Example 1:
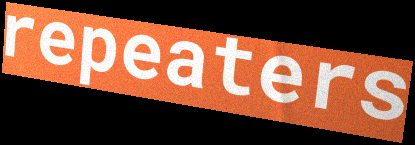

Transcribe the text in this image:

repeaters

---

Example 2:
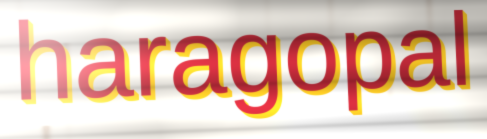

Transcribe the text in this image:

haragopal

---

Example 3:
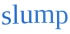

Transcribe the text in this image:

slump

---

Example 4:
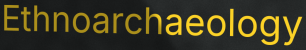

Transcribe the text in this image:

Ethnoarchaeology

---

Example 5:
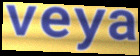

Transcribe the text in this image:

veya